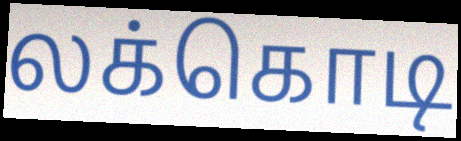
லக்கொடி